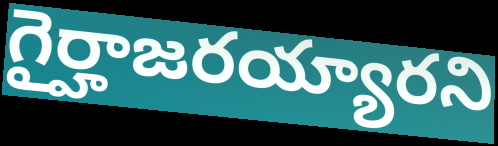
గైర్హాజరయ్యారని